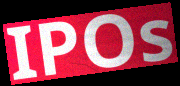
IPOs